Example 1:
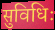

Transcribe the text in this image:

सुविधिः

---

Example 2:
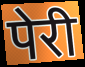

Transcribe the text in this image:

पेरी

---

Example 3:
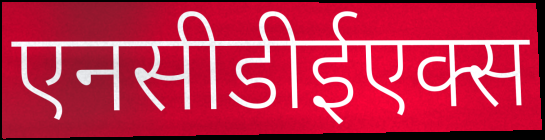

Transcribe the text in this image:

एनसीडीईएक्स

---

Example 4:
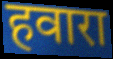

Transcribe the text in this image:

हवारा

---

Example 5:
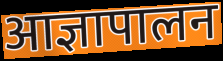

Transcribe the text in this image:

आज्ञापालन